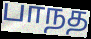
பாநத